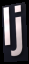
lj